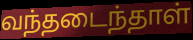
வந்தடைந்தாள்